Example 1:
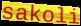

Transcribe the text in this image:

sakoli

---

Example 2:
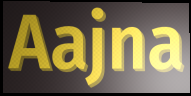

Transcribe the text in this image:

Aajna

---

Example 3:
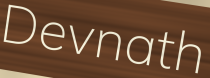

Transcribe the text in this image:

Devnath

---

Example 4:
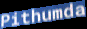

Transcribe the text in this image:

Pithumda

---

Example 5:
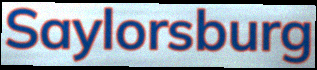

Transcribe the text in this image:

Saylorsburg